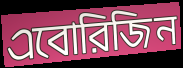
এবোরিজিন